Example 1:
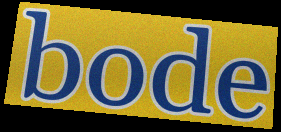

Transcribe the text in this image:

bode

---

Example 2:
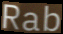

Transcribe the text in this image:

Rab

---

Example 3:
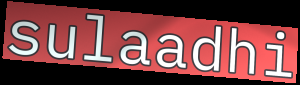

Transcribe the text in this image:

sulaadhi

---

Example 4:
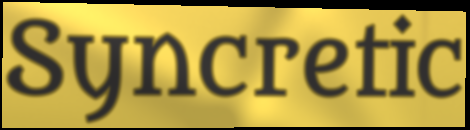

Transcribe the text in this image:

Syncretic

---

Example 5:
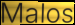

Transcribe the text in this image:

Malos